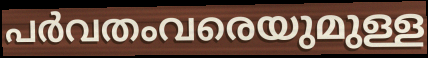
പർവതംവരെയുമുള്ള